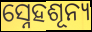
ସ୍ନେହଶୂନ୍ୟ